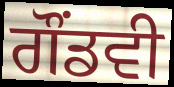
ਗੌਂਡਵੀ